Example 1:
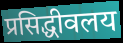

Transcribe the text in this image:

प्रसिद्धीवलय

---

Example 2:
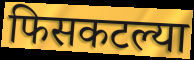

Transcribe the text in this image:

फिसकटल्या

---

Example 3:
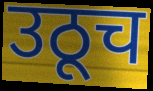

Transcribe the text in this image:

उठूच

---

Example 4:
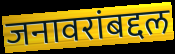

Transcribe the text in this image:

जनावरांबद्दल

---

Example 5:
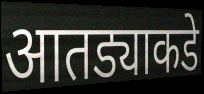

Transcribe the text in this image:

आतड्याकडे